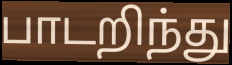
பாடறிந்து